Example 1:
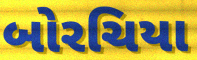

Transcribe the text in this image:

બોરચિયા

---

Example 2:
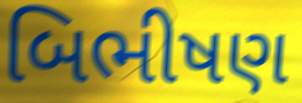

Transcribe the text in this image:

બિભીષણ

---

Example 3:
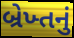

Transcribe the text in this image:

બ્રેખ્તનું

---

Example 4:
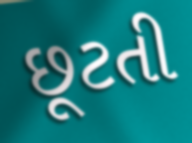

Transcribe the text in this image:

છૂટતી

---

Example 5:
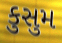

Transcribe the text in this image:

કુસુમ